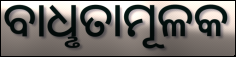
ବାଧୢତାମୂଳକ